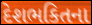
દેશભકિતના